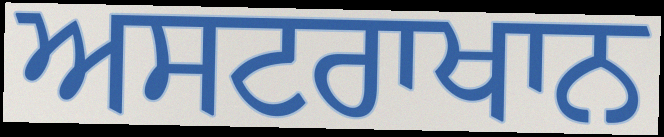
ਅਸਟਰਾਖਾਨ